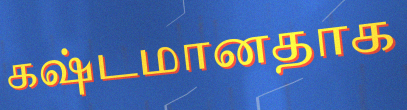
கஷ்டமானதாக